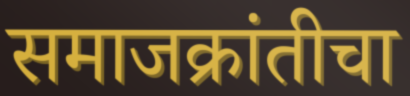
समाजक्रांतीचा